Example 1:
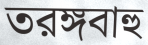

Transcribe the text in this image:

তরঙ্গবাহু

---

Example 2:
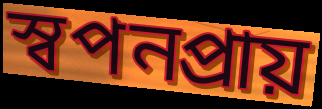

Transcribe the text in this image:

স্বপনপ্রায়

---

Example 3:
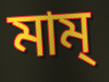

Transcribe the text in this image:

মাম্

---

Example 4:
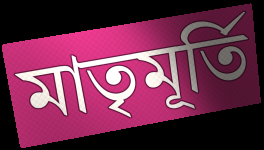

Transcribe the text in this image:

মাতৃমূর্তি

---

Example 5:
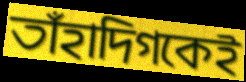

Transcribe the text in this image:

তাঁহাদিগকেই